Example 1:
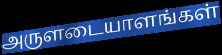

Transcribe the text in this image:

அருளடையாளங்கள்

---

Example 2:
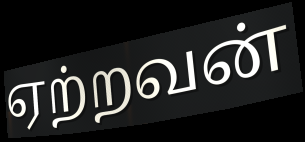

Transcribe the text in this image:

ஏற்றவன்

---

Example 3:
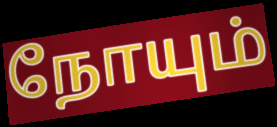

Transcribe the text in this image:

நோயும்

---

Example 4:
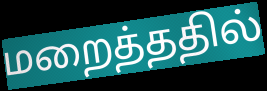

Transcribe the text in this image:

மறைத்ததில்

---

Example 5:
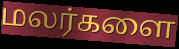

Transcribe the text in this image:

மலர்களை